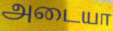
அடையா